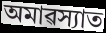
অমাৱস্যাত